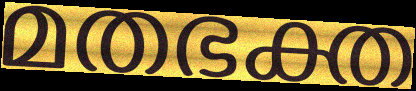
മതഭക്ത